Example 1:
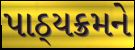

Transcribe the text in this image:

પાઠ્યક્રમને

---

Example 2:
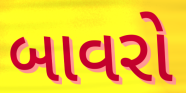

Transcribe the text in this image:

બાવરો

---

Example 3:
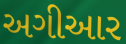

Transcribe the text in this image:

અગીઆર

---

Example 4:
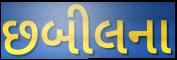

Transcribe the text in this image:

છબીલના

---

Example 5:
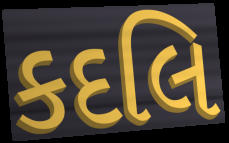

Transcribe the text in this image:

કદલિ